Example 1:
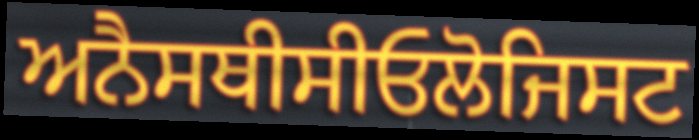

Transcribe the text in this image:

ਅਨੈਸਥੀਸੀਓਲੋਜਿਸਟ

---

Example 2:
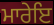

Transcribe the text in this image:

ਮਾਰੇਇ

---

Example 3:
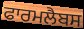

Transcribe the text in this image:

ਫਾਰਮਲੈਬਸ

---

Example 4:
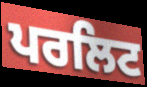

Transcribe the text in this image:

ਪਰਲਿਟ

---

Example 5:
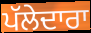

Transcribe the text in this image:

ਪੱਲੇਦਾਰਾ